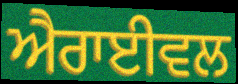
ਐਰਾਈਵਲ